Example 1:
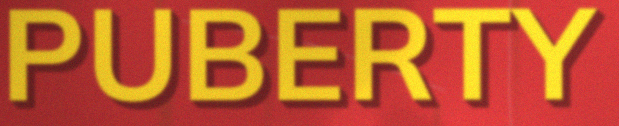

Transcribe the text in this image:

PUBERTY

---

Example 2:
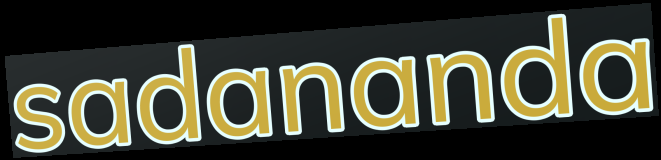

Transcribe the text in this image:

sadananda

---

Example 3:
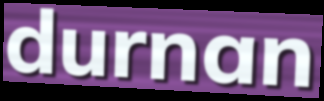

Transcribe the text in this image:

durnan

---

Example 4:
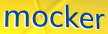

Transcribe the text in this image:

mocker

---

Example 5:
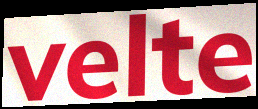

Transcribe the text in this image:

velte